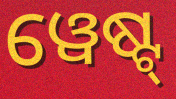
ୱେଷ୍ଟ୍